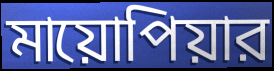
মায়োপিয়ার